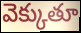
వెక్కుతూ